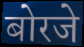
बोरजे